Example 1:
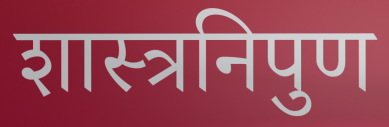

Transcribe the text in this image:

शास्त्रनिपुण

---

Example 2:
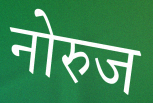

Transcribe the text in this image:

नोरुज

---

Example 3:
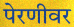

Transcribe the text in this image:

पेरणीवर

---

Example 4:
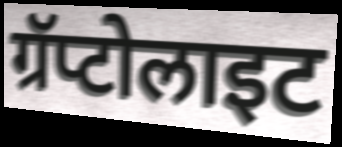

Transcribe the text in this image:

ग्रॅप्टोलाइट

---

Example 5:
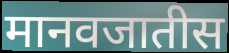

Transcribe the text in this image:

मानवजातीस